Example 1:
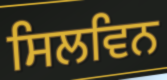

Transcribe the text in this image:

ਸਿਲਵਿਨ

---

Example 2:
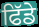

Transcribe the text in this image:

ਫਿੱਡੇ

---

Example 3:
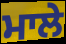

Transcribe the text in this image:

ਮਾਲੇ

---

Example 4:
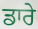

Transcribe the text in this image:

ਡਾਰੇ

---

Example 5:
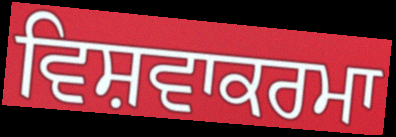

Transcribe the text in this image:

ਵਿਸ਼ਵਾਕਰਮਾ